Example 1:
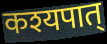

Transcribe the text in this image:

कश्यपात्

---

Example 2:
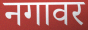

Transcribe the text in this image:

नगावर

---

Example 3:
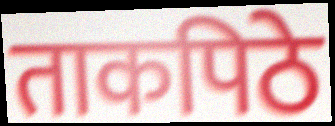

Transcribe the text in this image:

ताकपिठे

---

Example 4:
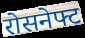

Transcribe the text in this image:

रोसनेफ्ट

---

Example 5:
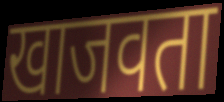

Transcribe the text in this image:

खाजवता